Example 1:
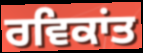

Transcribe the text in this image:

ਰਵਿਕਾਂਤ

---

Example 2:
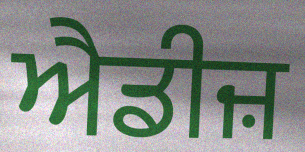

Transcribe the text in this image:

ਐਡੀਜ਼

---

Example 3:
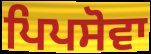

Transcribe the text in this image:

ਪਿਪਸੋਵਾ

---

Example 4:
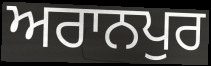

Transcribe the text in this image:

ਅਰਾਨਪੁਰ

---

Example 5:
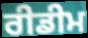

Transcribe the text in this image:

ਰੀਡੀਮ